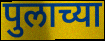
पुलाच्या